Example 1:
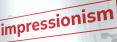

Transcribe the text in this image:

impressionism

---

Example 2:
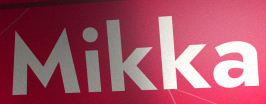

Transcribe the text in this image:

Mikka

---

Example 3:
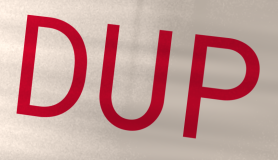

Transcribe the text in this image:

DUP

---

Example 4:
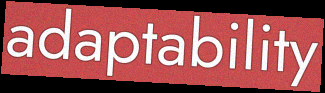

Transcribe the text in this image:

adaptability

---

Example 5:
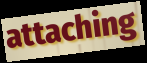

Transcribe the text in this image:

attaching